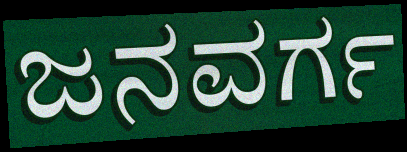
ಜನವರ್ಗ